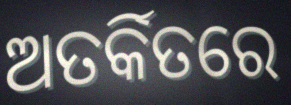
ଅତର୍କିତରେ